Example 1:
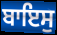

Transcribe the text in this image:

ਬਾਇਸੁ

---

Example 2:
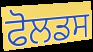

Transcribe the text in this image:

ਫੋਲਡਸ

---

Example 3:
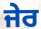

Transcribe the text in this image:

ਜੇਰ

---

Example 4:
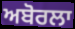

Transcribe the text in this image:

ਅਬੋਰਲਾ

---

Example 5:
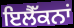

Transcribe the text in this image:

ਇਲੈੱਕਨਾਂ